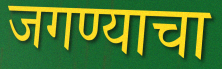
जगण्याचा